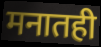
मनातही